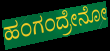
ಹಂಗಂದ್ರೇನೋ